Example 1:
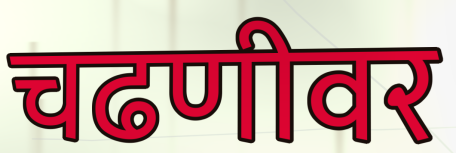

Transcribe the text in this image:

चढणीवर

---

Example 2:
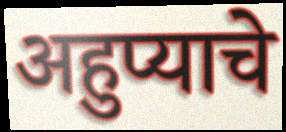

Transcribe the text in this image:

अहुप्याचे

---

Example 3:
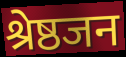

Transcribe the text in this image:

श्रेष्ठजन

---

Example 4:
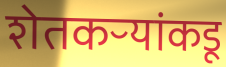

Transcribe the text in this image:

शेतकऱ्यांकडू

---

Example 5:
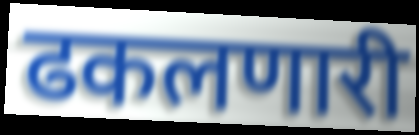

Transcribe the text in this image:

ढकलणारी